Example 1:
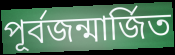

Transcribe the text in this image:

পূৰ্বজন্মাৰ্জিত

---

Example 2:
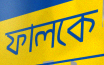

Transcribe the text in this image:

ফালকে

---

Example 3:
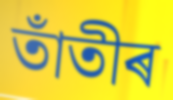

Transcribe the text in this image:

তাঁতীৰ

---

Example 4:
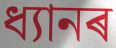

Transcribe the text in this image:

ধ্যানৰ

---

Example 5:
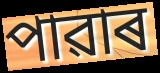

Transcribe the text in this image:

পাৱাৰ